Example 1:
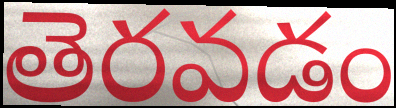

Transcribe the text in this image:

తెరవడం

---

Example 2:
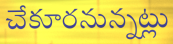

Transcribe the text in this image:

చేకూరనున్నట్లు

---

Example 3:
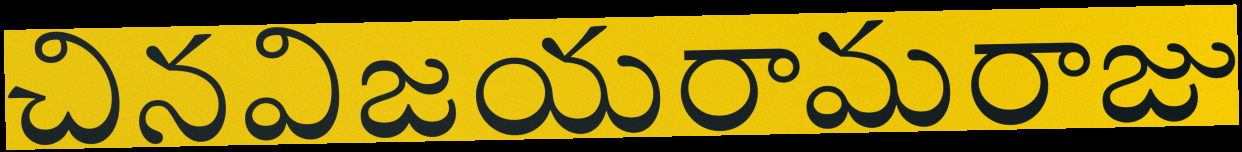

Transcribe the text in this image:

చినవిజయరామరాజు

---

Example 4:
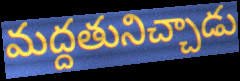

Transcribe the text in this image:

మద్దతునిచ్చాడు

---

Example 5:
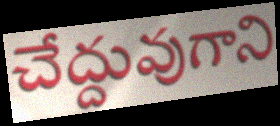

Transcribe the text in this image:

చేద్దువుగాని